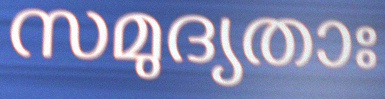
സമുദ്യതാഃ